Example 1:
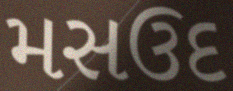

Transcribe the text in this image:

મસઉદ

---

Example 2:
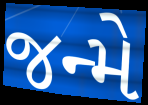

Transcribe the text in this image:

જન્મે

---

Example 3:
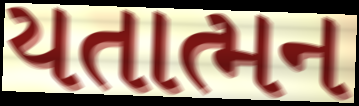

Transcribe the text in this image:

યતાત્મન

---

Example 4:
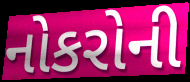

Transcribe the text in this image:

નોકરોની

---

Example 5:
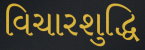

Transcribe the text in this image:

વિચારશુદ્ધિ